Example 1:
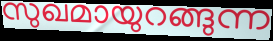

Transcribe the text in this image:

സുഖമായുറങ്ങുന്ന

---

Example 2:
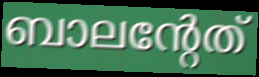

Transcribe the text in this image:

ബാലന്റേത്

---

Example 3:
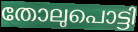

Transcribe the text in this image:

തോലുപൊട്ടി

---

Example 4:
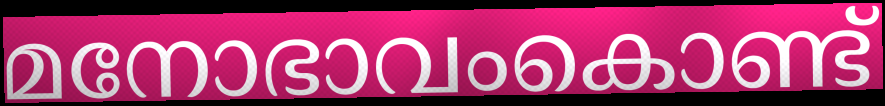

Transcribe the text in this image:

മനോഭാവംകൊണ്ട്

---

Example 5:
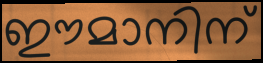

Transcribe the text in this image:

ഈമാനിന്